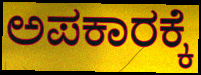
ಅಪಕಾರಕ್ಕೆ